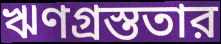
ঋণগ্রস্ততার